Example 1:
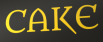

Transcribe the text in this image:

CAKE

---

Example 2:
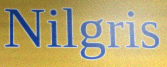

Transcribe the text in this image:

Nilgris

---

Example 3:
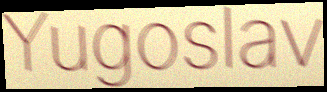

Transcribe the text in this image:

Yugoslav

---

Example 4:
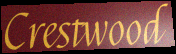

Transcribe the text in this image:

Crestwood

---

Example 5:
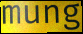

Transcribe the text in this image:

mung